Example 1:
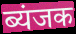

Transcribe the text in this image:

ब्यंजक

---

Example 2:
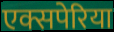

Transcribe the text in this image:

एक्सपेरिया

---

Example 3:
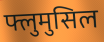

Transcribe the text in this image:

फ्लुमुसिल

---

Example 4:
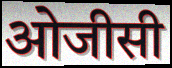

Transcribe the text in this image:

ओजीसी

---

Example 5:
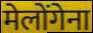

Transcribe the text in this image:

मेलोंगेना